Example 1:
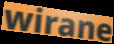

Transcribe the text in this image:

wirane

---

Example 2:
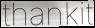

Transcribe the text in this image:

thankit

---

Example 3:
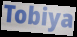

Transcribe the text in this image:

Tobiya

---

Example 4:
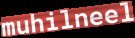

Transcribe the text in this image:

muhilneel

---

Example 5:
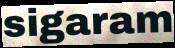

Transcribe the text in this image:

sigaram